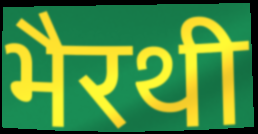
भैरथी